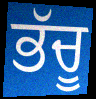
ਭੱਚੂ